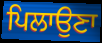
ਪਿਲਾਉਣਾ